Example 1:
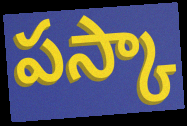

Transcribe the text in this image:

పస్కా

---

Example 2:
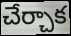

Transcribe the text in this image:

చేర్చాక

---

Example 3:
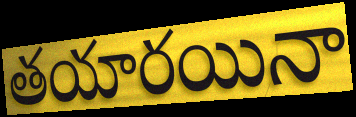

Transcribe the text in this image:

తయారయినా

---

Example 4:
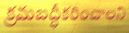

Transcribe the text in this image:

క్రమబద్ధీకరించాలని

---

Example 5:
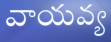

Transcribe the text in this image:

వాయవ్య